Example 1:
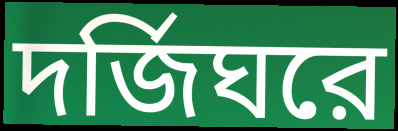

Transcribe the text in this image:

দর্জিঘরে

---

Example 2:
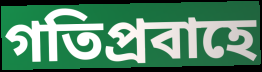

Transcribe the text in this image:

গতিপ্রবাহে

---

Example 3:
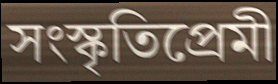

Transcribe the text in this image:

সংস্কৃতিপ্রেমী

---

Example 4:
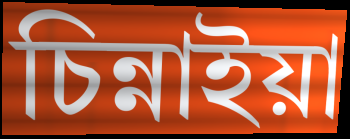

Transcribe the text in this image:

চিন্নাইয়া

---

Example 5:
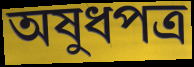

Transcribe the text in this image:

অষুধপত্র